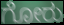
ಗೋರು